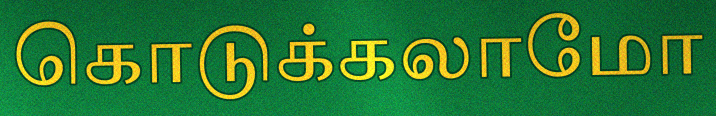
கொடுக்கலாமோ